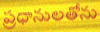
ప్రధానులతోను